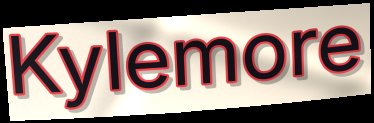
Kylemore